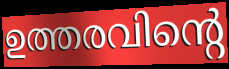
ഉത്തരവിന്റെ